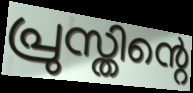
പ്രുസ്തിന്റെ